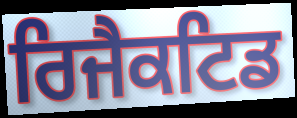
ਰਿਜੈਕਟਿਡ